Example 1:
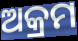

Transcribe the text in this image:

ଅକ୍ରମ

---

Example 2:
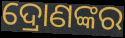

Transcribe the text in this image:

ଦ୍ରୋଣଙ୍କର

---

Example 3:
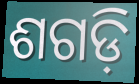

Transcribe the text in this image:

ଶଗଡ଼ି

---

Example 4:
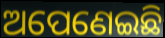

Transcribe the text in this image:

ଅପେଣେଇଛି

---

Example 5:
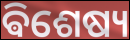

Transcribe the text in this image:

ଵିଶେଷ୍ୟ